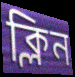
ক্লিন